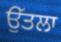
ਉੱਤਲਾ